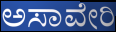
ಅಸಾವೇರಿ